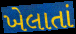
ખેલાતાં